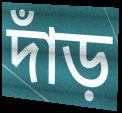
দাঁড়